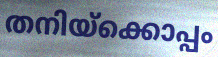
തനിയ്ക്കൊപ്പം